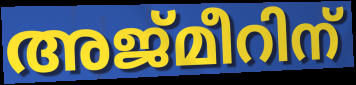
അജ്മീറിന്